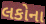
લકોના